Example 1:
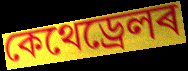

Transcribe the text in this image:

কেথেড্ৰেলৰ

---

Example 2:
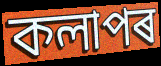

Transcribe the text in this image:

কলাপৰ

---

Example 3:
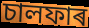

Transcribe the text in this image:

চালফাৰ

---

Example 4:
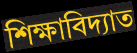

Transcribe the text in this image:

শিক্ষাবিদ্যাত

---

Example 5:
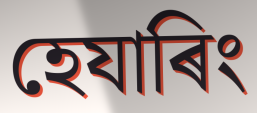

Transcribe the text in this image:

হেযাৰিং